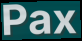
Pax